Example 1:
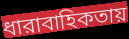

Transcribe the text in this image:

ধারাবাহিকতায়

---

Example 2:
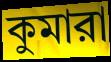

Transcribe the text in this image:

কুমারা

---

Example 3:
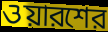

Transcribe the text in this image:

ওয়ারশের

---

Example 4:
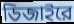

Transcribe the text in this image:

ডিজাইরে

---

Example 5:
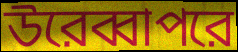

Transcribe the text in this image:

উরেব্বাপরে